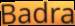
Badra